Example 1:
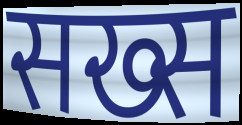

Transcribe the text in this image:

सख्स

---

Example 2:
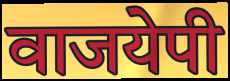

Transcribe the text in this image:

वाजयेपी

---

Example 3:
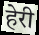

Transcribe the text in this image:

हेरी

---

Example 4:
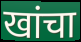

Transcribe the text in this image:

खांचा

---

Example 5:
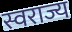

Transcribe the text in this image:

स्वराज्य